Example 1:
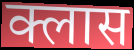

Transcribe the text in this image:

क्लास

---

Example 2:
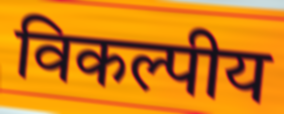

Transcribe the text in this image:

विकल्पीय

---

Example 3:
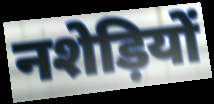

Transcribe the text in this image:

नशेड़ियों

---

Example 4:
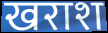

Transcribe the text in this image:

खराश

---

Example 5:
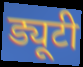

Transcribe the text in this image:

ड्यूटी